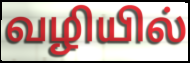
வழியில்